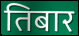
तिबार